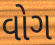
વોગ